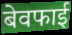
बेवफाई